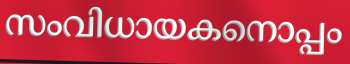
സംവിധായകനൊപ്പം